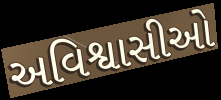
અવિશ્વાસીઓ